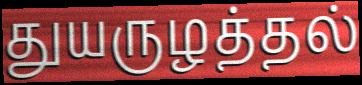
துயருழத்தல்